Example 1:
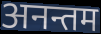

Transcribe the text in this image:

अनन्तम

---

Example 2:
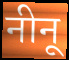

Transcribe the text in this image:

नीनू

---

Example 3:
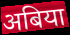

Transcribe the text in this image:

अबिया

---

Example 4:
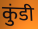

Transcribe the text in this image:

कुंडी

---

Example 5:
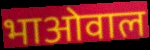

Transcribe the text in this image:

भाओवाल